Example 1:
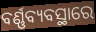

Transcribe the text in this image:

ବର୍ଣ୍ଣବ୍ୟବସ୍ଥାରେ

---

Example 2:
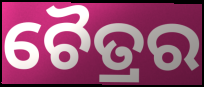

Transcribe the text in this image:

ଚୈତ୍ରର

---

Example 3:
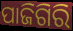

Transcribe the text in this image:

ପାଜିଗିରି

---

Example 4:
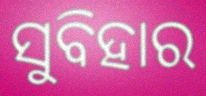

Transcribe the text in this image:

ସୁବିହାର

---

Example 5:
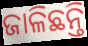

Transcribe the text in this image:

ଜାଳିଛନ୍ତି